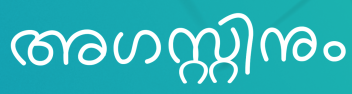
അഗസ്റ്റിനും